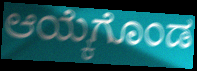
ಆಯ್ಕೆಗೊಂಡ